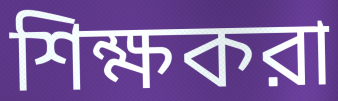
শিক্ষকরা